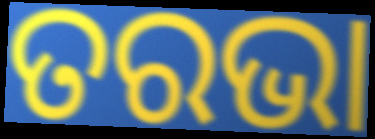
ତରଭା